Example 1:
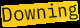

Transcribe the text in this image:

Downing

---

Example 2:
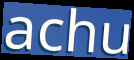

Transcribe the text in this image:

achu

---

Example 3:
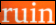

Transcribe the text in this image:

ruin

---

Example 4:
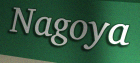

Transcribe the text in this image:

Nagoya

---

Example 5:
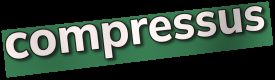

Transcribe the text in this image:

compressus